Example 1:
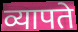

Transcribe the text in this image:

व्यापते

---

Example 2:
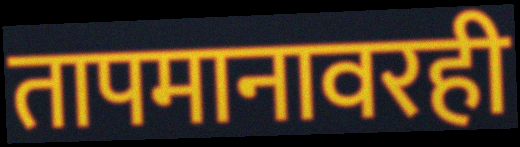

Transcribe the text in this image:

तापमानावरही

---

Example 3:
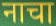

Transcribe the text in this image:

नाचा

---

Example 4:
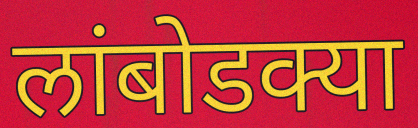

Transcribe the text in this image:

लांबोडक्या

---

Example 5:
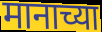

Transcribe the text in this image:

मानाच्या